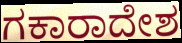
ಗಕಾರಾದೇಶ